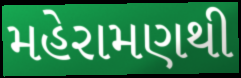
મહેરામણથી